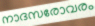
നാദസരോവരം